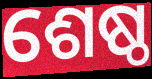
ଶେଷ୍ଠ